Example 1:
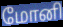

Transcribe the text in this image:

மோனி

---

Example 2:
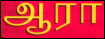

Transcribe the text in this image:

ஆரா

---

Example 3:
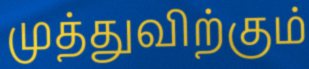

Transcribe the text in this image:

முத்துவிற்கும்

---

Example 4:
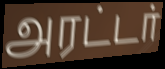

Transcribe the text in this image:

அரட்டர்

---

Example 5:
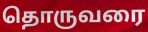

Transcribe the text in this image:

தொருவரை